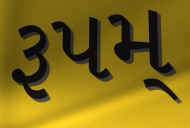
રૂપમ્